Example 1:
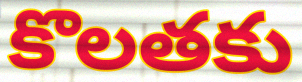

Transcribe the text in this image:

కొలతకు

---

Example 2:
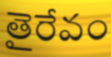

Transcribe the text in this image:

తైరేవం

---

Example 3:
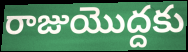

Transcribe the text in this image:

రాజుయొద్దకు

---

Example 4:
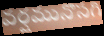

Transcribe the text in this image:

వర్షమునొసగి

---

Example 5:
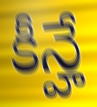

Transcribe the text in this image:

కీన్హే